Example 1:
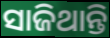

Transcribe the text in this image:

ସାଜିଥାନ୍ତି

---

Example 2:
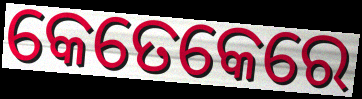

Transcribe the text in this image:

କେତେକେରେ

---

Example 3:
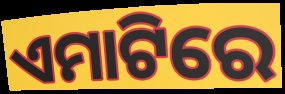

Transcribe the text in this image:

ଏମାଟିରେ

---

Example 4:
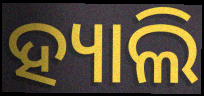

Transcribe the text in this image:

ହ୍ୟାଲି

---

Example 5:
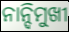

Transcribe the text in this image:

ନାନ୍ଦିମୁଖୀ